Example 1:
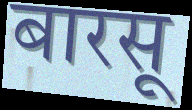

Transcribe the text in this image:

बारसू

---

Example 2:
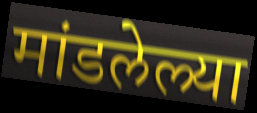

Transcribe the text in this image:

मांडलेल्या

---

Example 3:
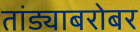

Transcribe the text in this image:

तांड्याबरोबर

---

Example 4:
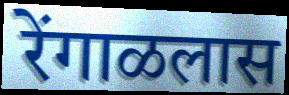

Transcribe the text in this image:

रेंगाळलास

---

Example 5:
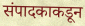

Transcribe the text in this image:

संपादकाकडून